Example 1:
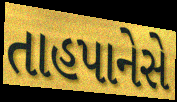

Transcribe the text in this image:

તાહપાનેસે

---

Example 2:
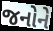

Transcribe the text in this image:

જનોને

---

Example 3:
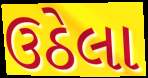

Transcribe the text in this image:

ઉઠેલા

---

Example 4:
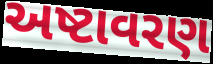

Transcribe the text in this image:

અષ્ટાવરણ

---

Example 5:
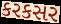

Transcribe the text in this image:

કરકસર